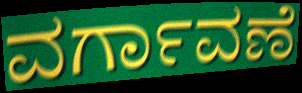
ವರ್ಗಾವಣೆ